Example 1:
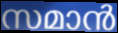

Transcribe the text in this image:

സമാൻ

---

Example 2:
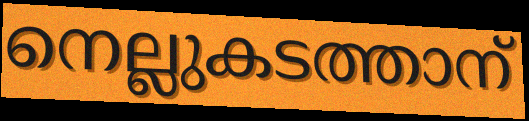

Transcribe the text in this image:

നെല്ലുകടത്താന്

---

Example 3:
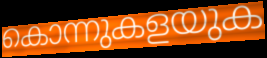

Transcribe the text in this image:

കൊന്നുകളയുക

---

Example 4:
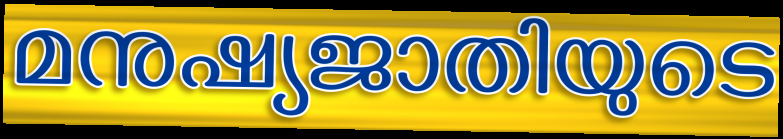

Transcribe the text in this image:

മനുഷ്യജാതിയുടെ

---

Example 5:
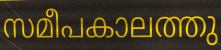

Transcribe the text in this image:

സമീപകാലത്തു